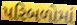
પરિબળોમાં